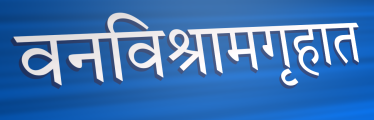
वनविश्रामगृहात